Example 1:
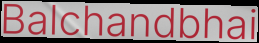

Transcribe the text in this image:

Balchandbhai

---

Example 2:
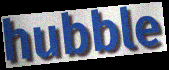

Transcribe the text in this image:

hubble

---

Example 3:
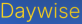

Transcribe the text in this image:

Daywise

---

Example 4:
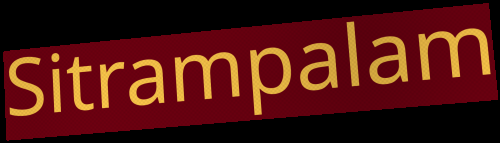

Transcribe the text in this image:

Sitrampalam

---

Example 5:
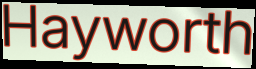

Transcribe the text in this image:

Hayworth